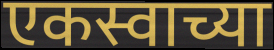
एकस्वाच्या